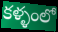
కళ్ళంలో